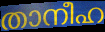
താനീഹ